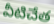
వీటిచేత